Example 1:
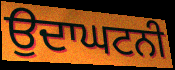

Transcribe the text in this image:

ਉਦਾਘਟਨੀ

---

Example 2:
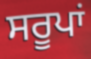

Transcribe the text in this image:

ਸਰੂਪਾਂ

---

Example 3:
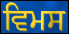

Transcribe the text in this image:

ਵਿਮਸ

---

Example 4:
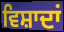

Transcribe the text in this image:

ਵਿਸ਼ਾਦਾਂ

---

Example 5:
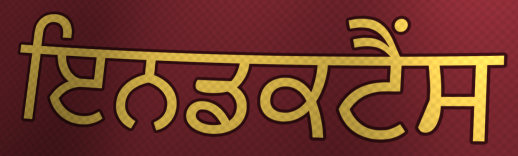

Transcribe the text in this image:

ਇਨਡਕਟੈਂਸ